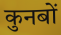
कुनबों